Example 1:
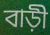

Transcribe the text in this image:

বাড়ী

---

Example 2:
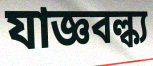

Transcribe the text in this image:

যাজ্ঞবল্ক্য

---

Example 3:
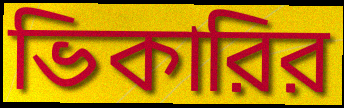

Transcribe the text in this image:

ভিকারির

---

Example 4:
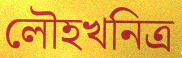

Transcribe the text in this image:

লৌহখনিত্র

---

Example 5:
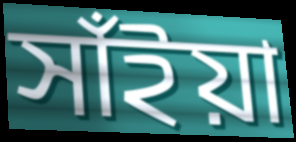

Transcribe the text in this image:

সাঁইয়া